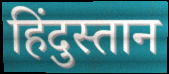
हिंदुस्तान